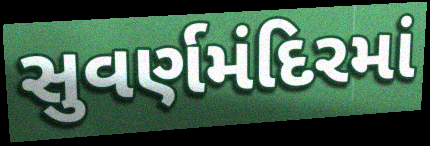
સુવર્ણમંદિરમાં